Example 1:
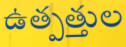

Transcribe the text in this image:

ఉత్పత్తుల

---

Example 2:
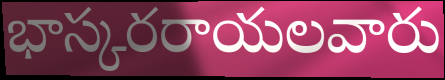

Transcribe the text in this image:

భాస్కరరాయలవారు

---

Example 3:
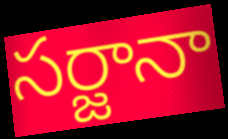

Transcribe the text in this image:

సర్జానా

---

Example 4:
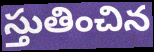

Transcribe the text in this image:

స్తుతించిన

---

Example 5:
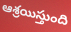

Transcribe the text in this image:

ఆశ్రయిస్తుంది